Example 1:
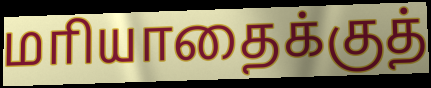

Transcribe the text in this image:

மரியாதைக்குத்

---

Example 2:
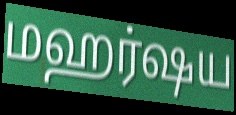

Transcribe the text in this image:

மஹர்ஷய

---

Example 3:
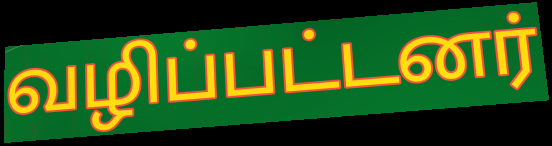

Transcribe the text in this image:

வழிப்பட்டனர்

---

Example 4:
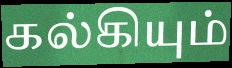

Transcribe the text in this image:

கல்கியும்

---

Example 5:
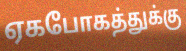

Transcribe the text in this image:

ஏகபோகத்துக்கு